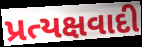
પ્રત્યક્ષવાદી